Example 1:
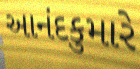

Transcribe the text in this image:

આનંદકુમારે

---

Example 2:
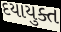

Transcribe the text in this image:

દયાયુક્ત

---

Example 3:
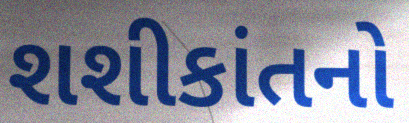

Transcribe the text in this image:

શશીકાંતનો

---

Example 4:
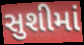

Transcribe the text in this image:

સુશીમાં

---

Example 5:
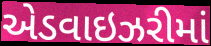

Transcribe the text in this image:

એડવાઇઝરીમાં